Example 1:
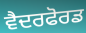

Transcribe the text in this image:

ਵੈਦਰਫੋਰਡ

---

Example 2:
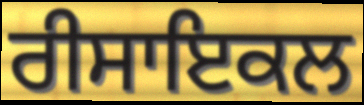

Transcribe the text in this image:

ਰੀਸਾਇਕਲ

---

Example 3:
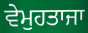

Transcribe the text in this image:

ਵੇਮੁਹਤਾਜਾ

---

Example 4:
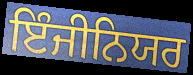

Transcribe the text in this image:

ਇੰਜੀਨਿਯਰ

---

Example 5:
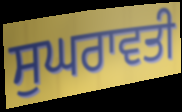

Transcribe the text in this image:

ਸੁਘਰਾਵਤੀ